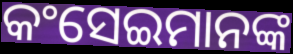
କଂସେଇମାନଙ୍କ